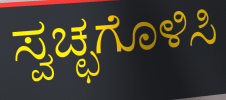
ಸ್ವಚ್ಛಗೊಳಿಸಿ